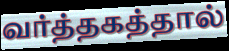
வர்த்தகத்தால்